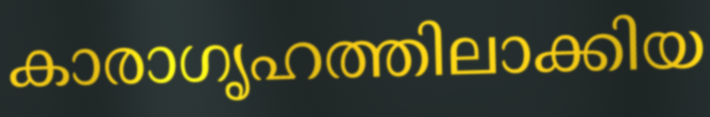
കാരാഗൃഹത്തിലാക്കിയ